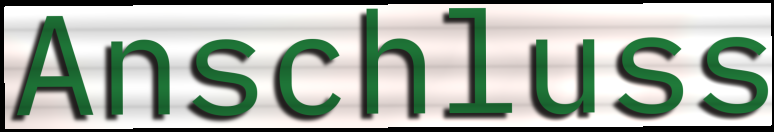
Anschluss